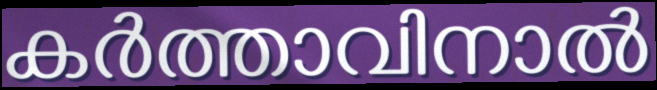
കർത്താവിനാൽ